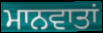
ਮਾਨਵਾਤਾਂ